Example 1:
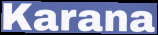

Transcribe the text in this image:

Karana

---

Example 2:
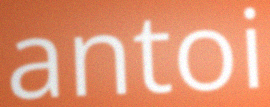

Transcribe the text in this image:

antoi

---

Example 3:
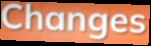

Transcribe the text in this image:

Changes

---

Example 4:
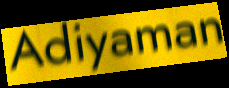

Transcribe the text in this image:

Adiyaman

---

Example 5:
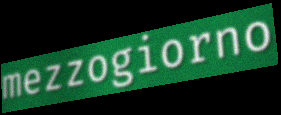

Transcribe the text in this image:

mezzogiorno